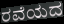
ರವೆಯದ